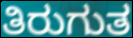
ತಿರುಗುತ